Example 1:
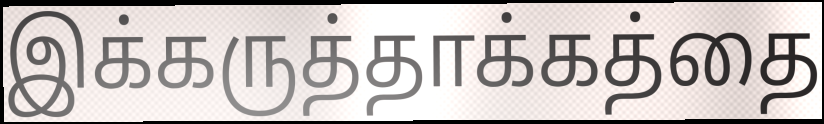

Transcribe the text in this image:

இக்கருத்தாக்கத்தை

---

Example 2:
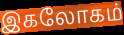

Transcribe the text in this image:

இகலோகம்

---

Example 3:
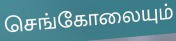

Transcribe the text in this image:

செங்கோலையும்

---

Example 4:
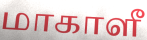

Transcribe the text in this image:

மாகாளீ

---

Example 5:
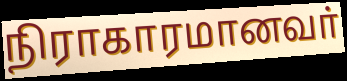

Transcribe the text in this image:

நிராகாரமானவர்